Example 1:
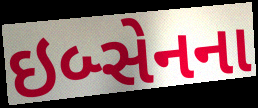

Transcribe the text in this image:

ઇબ્સેનના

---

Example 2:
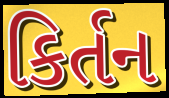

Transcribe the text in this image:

કિર્તન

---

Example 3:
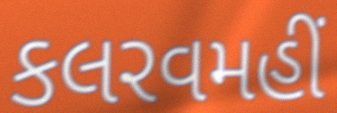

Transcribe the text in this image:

કલરવમહીં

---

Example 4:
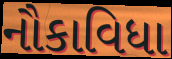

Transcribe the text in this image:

નૌકાવિધા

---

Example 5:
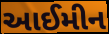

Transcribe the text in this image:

આઈમીન